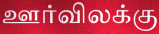
ஊர்விலக்கு